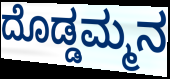
ದೊಡ್ಡಮ್ಮನ